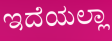
ಇದೆಯಲ್ಲಾ